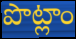
పొట్లాం